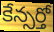
కేన్సర్తో